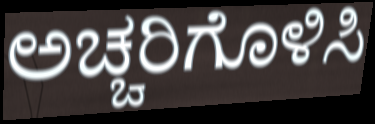
ಅಚ್ಚರಿಗೊಳಿಸಿ